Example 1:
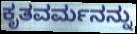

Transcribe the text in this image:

ಕೃತವರ್ಮನನ್ನು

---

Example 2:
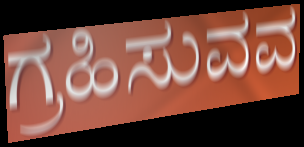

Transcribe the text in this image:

ಗ್ರಹಿಸುವವ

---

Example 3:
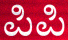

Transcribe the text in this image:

ಪಿಪಿ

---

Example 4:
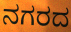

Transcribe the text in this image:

ನಗರದ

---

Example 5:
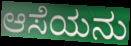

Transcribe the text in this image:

ಆಸೆಯನು